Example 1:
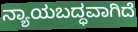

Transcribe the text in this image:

ನ್ಯಾಯಬದ್ಧವಾಗಿದೆ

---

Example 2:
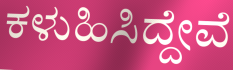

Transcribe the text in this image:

ಕಳುಹಿಸಿದ್ದೇವೆ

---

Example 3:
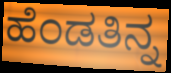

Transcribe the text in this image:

ಹೆಂಡತಿನ್ನ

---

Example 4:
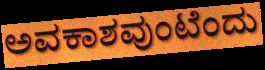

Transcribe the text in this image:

ಅವಕಾಶವುಂಟೆಂದು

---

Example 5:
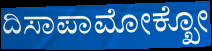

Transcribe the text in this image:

ದಿಸಾಪಾಮೋಕ್ಖೋ